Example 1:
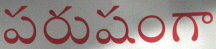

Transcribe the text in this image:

పరుషంగా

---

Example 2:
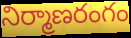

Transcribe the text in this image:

నిర్మాణరంగం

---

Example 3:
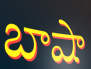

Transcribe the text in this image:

బాషా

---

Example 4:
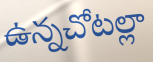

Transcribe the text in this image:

ఉన్నచోటల్లా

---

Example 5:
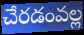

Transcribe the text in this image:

చేరడంవల్ల